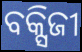
ବକ୍ସିଜୀ